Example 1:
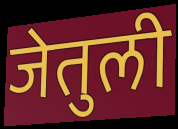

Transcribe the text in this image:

जेतुली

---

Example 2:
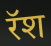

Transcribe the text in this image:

रॅश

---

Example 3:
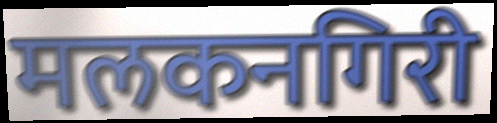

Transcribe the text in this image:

मलकनगिरी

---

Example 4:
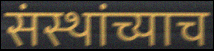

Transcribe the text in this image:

संस्थांच्याच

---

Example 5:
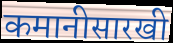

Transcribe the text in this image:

कमानीसारखी